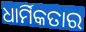
ଧାର୍ମିକତାର